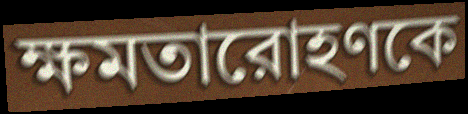
ক্ষমতারোহণকে